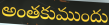
అంతకుముందు